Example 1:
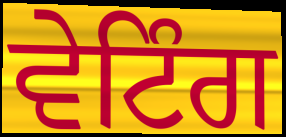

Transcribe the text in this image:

ਵੇਟਿੰਗ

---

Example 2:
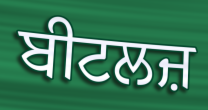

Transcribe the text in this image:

ਬੀਟਲਜ਼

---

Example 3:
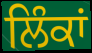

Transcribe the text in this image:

ਲਿੰਕਾਂ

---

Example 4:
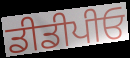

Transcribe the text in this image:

ਡੀਡੀਪੀਓ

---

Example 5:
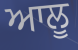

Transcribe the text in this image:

ਆਲੂ